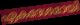
ഏകദേശമായി